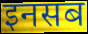
इनसब